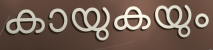
കായുകയും